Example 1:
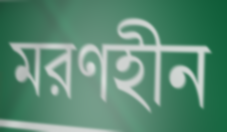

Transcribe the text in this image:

মরণহীন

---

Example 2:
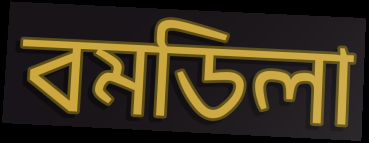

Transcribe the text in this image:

বমডিলা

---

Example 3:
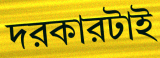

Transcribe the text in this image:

দরকারটাই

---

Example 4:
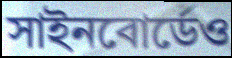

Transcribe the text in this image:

সাইনবোর্ডেও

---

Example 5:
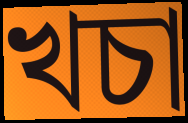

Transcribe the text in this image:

খচা